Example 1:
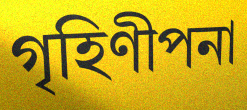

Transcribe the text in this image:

গৃহিণীপনা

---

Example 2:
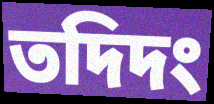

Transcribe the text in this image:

তদিদং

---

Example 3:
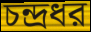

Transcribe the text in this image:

চন্দ্রধর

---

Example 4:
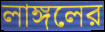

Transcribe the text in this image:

লাঙ্গলের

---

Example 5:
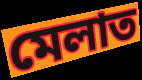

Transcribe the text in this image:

মেলাত